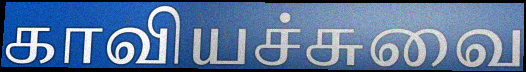
காவியச்சுவை